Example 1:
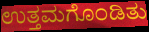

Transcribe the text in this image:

ಉತ್ತಮಗೊಂಡಿತು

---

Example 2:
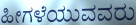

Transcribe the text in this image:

ಹೀಗಳೆಯುವವರು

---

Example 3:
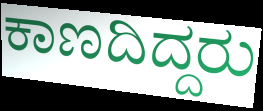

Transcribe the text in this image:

ಕಾಣದಿದ್ದರು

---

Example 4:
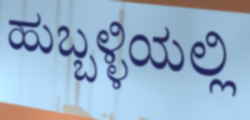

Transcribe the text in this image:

ಹುಬ್ಬಳ್ಳಿಯಲ್ಲಿ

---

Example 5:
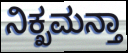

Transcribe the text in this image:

ನಿಕ್ಖಮನ್ತಾ